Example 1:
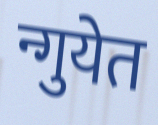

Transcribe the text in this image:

न्गुयेत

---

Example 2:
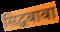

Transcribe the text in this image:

सिद्धबाबा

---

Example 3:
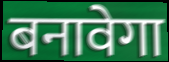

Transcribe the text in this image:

बनावेगा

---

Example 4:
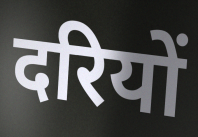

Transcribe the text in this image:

दरियों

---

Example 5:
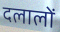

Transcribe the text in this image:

दलालों